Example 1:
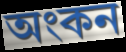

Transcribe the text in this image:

অংকন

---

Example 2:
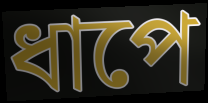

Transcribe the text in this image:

ধাপে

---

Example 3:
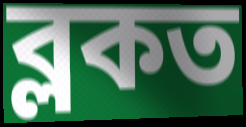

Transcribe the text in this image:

ব্লকত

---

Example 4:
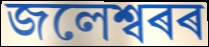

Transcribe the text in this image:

জলেশ্বৰৰ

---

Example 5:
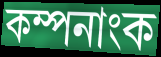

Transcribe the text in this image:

কম্পনাংক